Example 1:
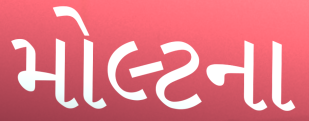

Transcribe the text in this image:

મોલ્ટના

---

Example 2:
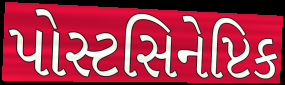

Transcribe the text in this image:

પોસ્ટસિનેપ્ટિક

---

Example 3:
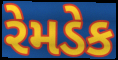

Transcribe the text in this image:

રેમડેક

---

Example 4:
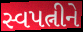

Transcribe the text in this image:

સ્વપત્નીને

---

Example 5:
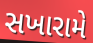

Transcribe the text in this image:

સખારામે